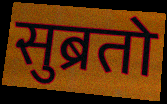
सुब्रतो